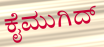
ಕೈಮುಗಿದ್